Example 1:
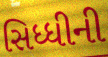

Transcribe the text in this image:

સિધ્ધીની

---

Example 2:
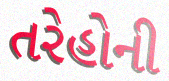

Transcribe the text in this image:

તરેહોની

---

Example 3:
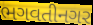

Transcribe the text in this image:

ભગવતીનગર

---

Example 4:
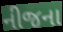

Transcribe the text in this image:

નીજના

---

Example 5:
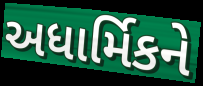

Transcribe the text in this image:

અધાર્મિકને